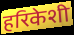
हरिकेशी